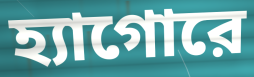
হ্যাগোরে